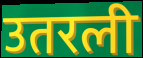
उतरली